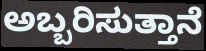
ಅಬ್ಬರಿಸುತ್ತಾನೆ